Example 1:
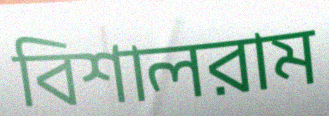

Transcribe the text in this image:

বিশালরাম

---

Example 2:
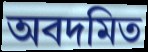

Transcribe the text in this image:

অবদমিত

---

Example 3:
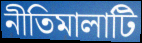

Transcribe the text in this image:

নীতিমালাটি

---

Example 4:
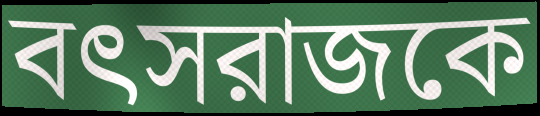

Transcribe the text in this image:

বৎসরাজকে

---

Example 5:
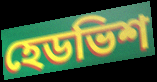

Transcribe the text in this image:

হেডভিশ